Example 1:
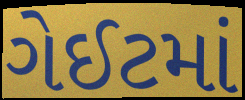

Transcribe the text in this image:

ગેઈટમાં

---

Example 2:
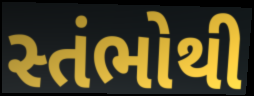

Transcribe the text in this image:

સ્તંભોથી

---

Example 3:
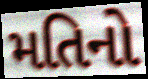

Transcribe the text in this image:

મતિનો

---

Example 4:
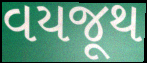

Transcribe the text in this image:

વયજૂથ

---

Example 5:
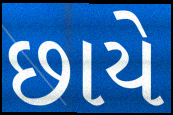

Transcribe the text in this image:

છાયે